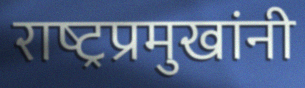
राष्ट्रप्रमुखांनी